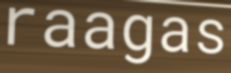
raagas